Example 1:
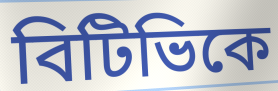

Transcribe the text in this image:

বিটিভিকে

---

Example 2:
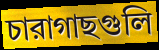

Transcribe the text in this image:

চারাগাছগুলি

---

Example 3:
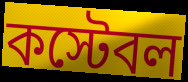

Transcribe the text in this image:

কস্টেবল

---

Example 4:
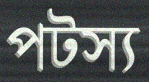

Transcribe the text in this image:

পটস্য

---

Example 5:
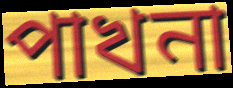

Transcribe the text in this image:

পাখনা